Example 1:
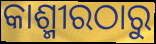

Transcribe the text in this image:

କାଶ୍ମୀରଠାରୁ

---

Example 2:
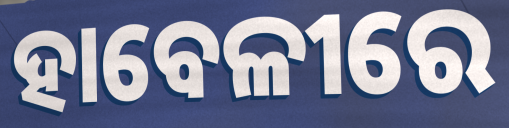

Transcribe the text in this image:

ହାବେଳୀରେ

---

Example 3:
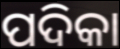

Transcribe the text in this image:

ପଦିକା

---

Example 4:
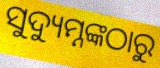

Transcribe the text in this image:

ସୁଦ୍ୟୁମ୍ନଙ୍କଠାରୁ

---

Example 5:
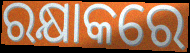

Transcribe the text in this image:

ରକ୍ଷାକରେ